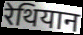
रेथियान